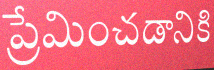
ప్రేమించడానికి